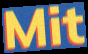
Mit